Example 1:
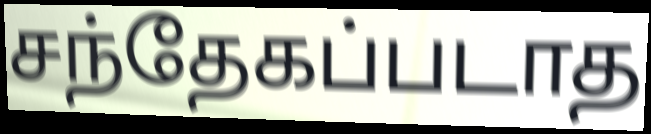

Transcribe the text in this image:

சந்தேகப்படாத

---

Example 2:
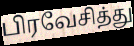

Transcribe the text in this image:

பிரவேசித்து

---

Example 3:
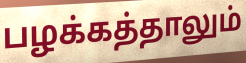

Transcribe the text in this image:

பழக்கத்தாலும்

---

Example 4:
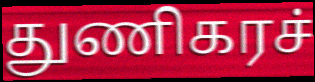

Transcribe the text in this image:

துணிகரச்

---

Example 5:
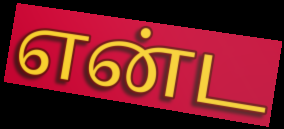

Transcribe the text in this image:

என்ட